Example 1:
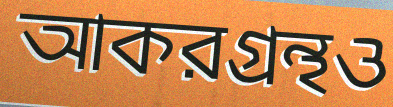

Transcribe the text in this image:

আকরগ্রন্থও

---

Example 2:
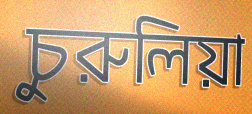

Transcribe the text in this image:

চুরুলিয়া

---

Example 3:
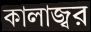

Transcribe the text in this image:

কালাজ্বর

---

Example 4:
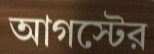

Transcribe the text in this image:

আগস্টের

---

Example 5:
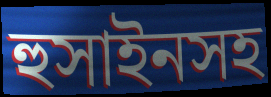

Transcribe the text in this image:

হুসাইনসহ